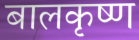
बालकृष्ण